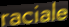
raciale